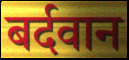
बर्दवान